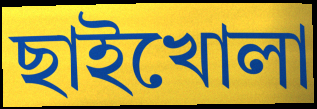
ছাইখোলা